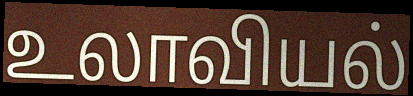
உலாவியல்